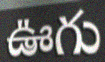
ఊగు